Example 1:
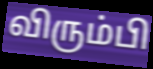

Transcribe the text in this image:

விரும்பி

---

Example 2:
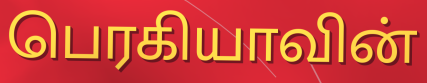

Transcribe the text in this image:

பெரகியாவின்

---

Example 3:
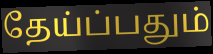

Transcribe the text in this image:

தேய்ப்பதும்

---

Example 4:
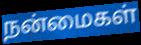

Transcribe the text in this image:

நன்மைகள்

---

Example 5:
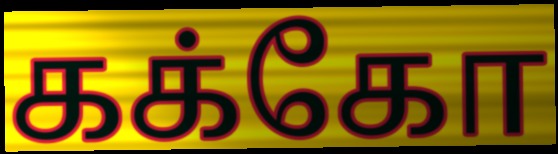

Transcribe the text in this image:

கக்கோ